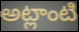
అట్లాంటి